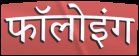
फॉलोइंग